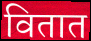
वितात